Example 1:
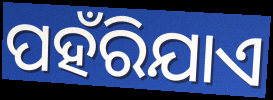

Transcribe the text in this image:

ପହଁରିଯାଏ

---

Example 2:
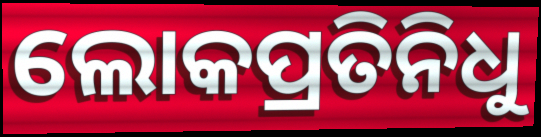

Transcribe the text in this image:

ଲୋକପ୍ରତିନିଧୁ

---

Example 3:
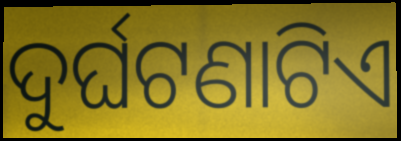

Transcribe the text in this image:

ଦୁର୍ଘଟଣାଟିଏ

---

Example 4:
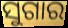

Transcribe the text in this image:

ସୁଗାର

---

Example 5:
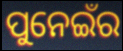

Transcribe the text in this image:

ପୁନେଇଁର